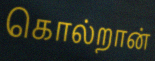
கொல்றான்